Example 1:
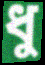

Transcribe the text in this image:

ধু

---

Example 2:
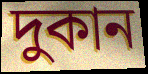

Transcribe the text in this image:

দুকান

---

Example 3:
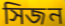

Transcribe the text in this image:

সিজন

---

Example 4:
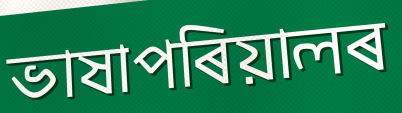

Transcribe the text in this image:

ভাষাপৰিয়ালৰ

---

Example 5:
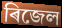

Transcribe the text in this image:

ৰিজেল